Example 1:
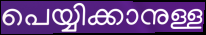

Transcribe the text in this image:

പെയ്യിക്കാനുള്ള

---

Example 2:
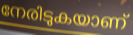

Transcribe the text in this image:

നേരിടുകയാണ്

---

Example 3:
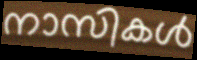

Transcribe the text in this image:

നാസികൾ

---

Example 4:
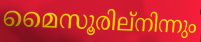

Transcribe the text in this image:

മൈസൂരില്നിന്നും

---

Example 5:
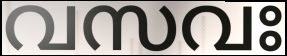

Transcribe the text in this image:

വസവഃ